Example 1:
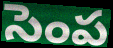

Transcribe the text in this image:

సెంప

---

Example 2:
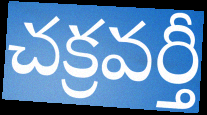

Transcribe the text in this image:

చక్రవర్తీ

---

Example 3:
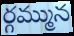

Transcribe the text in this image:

ర్గమ్మున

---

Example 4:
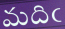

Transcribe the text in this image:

మదిఁ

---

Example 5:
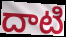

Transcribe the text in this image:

దాటి